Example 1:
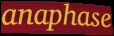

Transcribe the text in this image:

anaphase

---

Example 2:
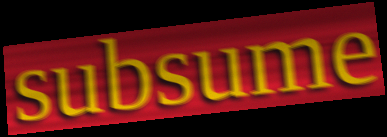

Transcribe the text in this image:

subsume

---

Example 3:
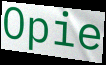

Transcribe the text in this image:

Opie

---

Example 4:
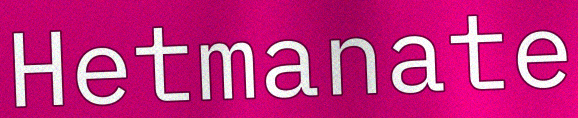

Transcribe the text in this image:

Hetmanate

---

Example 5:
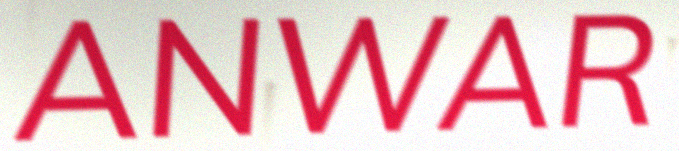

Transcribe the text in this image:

ANWAR